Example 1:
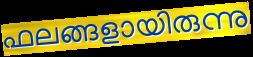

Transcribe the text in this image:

ഫലങ്ങളായിരുന്നു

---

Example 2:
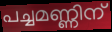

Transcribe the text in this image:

പച്ചമണ്ണിന്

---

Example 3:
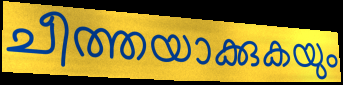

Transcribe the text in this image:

ചീത്തയാക്കുകയും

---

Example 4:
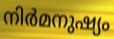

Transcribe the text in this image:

നിർമനുഷ്യം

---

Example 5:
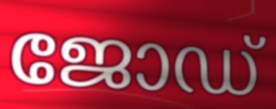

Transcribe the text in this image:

ജോഡ്